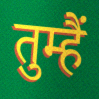
तुम्हैं